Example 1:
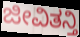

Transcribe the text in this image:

ಜೀವಿತನ್ತಿ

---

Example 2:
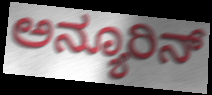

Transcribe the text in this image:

ಅನ್ಯೂರಿನ್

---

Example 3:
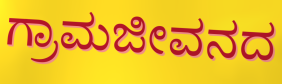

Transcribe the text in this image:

ಗ್ರಾಮಜೀವನದ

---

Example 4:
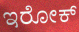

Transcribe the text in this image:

ಇರೋಕ್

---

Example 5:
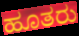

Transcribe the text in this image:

ಹೂತರು